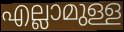
എല്ലാമുള്ള